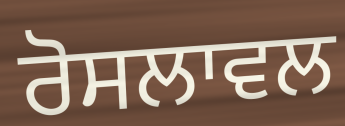
ਰੋਸਲਾਵਲ